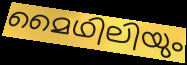
മൈഥിലിയും